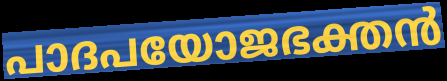
പാദപയോജഭക്തൻ